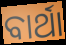
ବାର୍ଥା